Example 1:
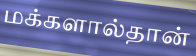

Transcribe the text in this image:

மக்களால்தான்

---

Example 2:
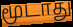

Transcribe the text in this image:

மூடாது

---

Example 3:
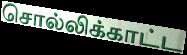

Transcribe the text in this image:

சொல்லிக்காட்ட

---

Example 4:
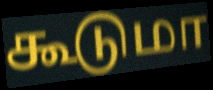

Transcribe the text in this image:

கூடுமா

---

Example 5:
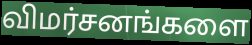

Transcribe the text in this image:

விமர்சனங்களை